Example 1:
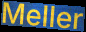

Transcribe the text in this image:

Meller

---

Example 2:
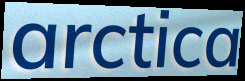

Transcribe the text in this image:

arctica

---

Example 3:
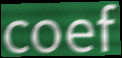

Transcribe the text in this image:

coef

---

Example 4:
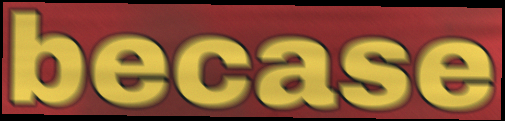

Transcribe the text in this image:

becase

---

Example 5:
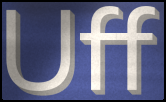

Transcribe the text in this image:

Uff